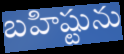
బహిష్టును